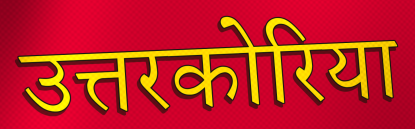
उत्तरकोरिया